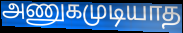
அணுகமுடியாத